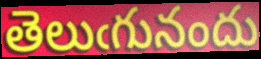
తెలుఁగునందు